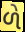
ળે